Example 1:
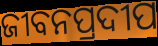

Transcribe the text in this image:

ଜୀବନପ୍ରଦୀପ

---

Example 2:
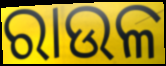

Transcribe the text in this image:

ରାଉଳ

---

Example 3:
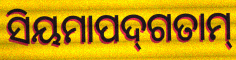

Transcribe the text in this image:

ସିୟମାପଦ୍‌ଗତାମ୍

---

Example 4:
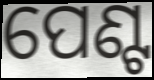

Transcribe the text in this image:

ପେଣ୍ଟ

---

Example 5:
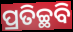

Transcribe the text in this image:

ପ୍ରତିଚ୍ଛବି